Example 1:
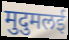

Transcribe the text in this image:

मुदुमलई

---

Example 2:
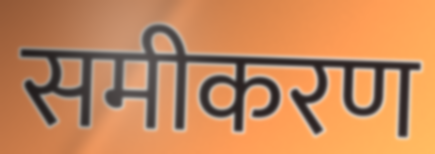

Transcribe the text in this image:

समीकरण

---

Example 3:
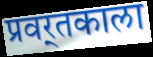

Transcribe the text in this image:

प्रवर्तकाला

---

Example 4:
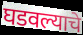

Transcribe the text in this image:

घडवल्याचे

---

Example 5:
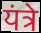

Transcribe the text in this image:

यंत्रे